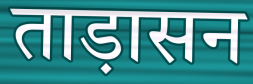
ताड़ासन